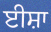
ਈਸ਼ਾ